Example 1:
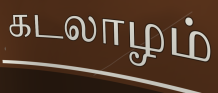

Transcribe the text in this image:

கடலாழம்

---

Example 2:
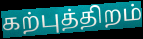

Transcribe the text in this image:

கற்புத்திறம்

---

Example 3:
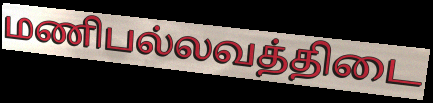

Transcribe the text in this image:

மணிபல்லவத்திடை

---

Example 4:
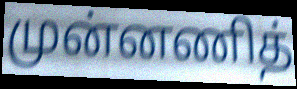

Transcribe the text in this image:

முன்னணித்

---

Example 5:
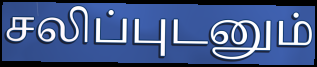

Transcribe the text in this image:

சலிப்புடனும்